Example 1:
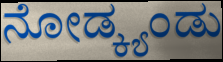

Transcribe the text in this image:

ನೋಡ್ಕ್ಯಂಡು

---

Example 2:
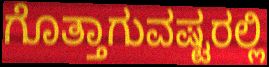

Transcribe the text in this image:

ಗೊತ್ತಾಗುವಷ್ಟರಲ್ಲಿ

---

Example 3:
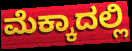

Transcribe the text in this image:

ಮೆಕ್ಕಾದಲ್ಲಿ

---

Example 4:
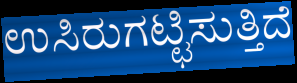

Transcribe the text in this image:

ಉಸಿರುಗಟ್ಟಿಸುತ್ತಿದೆ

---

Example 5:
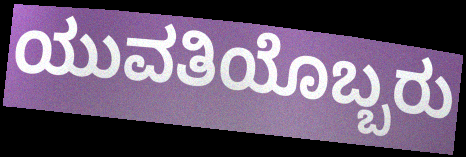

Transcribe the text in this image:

ಯುವತಿಯೊಬ್ಬರು